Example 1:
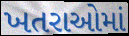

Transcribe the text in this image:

ખતરાઓમાં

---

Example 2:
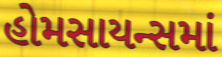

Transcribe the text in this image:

હોમસાયન્સમાં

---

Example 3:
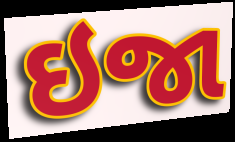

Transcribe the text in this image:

ઇજા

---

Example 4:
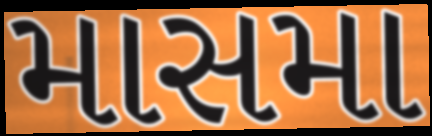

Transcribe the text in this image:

માસમા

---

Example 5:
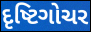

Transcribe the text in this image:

દૃષ્ટિગોચર